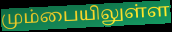
மும்பையிலுள்ள